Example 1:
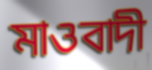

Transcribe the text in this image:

মাওবাদী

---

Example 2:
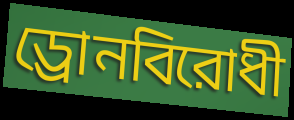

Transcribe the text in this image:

ড্রোনবিরোধী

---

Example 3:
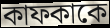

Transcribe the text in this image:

কাফকাকে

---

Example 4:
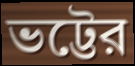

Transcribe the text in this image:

ভট্টের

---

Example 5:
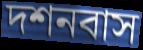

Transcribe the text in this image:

দশনবাস